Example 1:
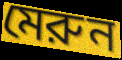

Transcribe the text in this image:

মেৰুন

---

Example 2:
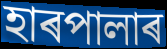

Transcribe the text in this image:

হাৰপালাৰ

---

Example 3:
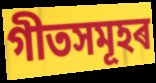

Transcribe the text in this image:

গীতসমূহৰ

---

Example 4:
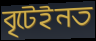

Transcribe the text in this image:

বৃটেইনত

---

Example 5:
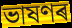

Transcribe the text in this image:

ভাষণৰ